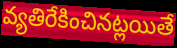
వ్యతిరేకించినట్లయితే